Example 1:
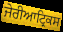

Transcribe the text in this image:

ਜੇਰੀਆਟ੍ਰਿਕਸ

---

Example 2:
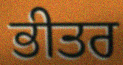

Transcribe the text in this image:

ਭੀਤਰ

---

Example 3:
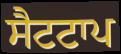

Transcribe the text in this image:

ਸੈਟਟਾਪ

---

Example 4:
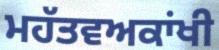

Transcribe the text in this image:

ਮਹੱਤਵਅਕਾਂਖੀ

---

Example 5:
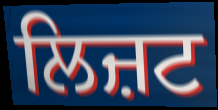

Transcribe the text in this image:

ਲਿਜ਼ਟ